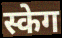
स्केग